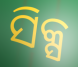
ସିକ୍ସ